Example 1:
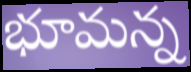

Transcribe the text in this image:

భూమన్న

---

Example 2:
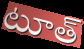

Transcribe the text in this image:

టూత్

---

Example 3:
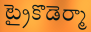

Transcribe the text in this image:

ట్రైకొడెర్మా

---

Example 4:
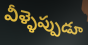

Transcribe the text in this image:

వీళ్ళెప్పుడూ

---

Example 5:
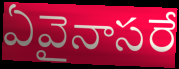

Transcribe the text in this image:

ఏవైనాసరే